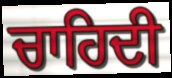
ਚਾਹਿਦੀ